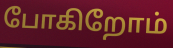
போகிறோம்